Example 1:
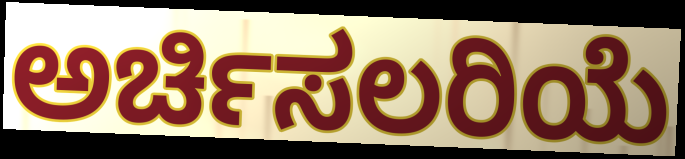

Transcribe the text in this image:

ಅರ್ಚಿಸಲರಿಯೆ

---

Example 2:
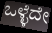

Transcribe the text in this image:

ಒಳ್ಳೆದೇ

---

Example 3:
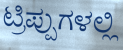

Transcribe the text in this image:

ಟ್ರಿಪ್ಪುಗಳಲ್ಲಿ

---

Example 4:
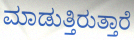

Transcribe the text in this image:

ಮಾಡುತ್ತಿರುತ್ತಾರೆ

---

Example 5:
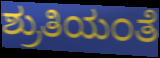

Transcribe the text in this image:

ಶ್ರುತಿಯಂತೆ